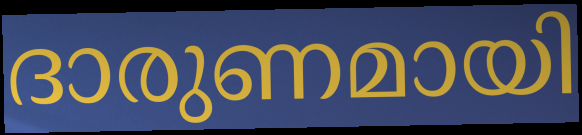
ദാരുണമായി